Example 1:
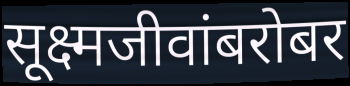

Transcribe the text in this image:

सूक्ष्मजीवांबरोबर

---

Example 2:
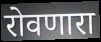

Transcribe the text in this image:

रोवणारा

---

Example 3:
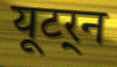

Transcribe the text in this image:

यूटर्न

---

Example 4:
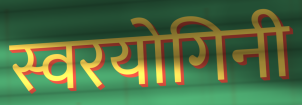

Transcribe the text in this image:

स्वरयोगिनी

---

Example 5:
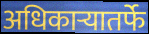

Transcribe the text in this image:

अधिकाऱ्यातर्फे